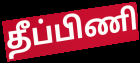
தீப்பிணி